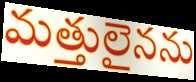
మత్తులైనను